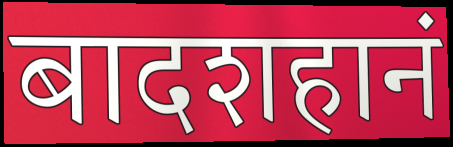
बादशहानं